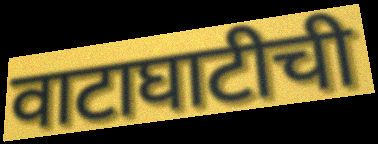
वाटाघाटीची